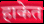
हाकेत